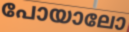
പോയാലോ